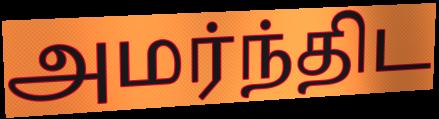
அமர்ந்திட